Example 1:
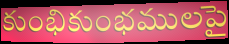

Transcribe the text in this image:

కుంభికుంభములపై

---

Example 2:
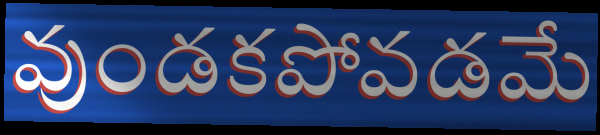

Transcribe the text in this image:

వుండకపోవడమే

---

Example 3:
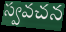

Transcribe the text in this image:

స్వవచన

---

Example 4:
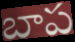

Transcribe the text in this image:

బాప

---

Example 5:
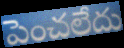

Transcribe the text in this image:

పెంచలేదు